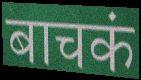
बाचकं